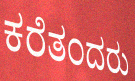
ಕರೆತಂದರು